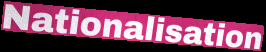
Nationalisation